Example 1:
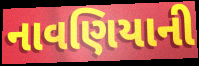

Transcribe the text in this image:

નાવણિયાની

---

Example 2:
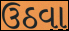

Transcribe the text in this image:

ઉઠવા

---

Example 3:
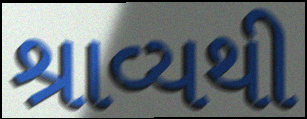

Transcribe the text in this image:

શ્રાવ્યથી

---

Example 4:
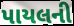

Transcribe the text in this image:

પાયલની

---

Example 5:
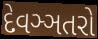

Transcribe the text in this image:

દેવઞ્ઞતરો